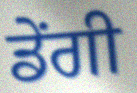
ਡੇਂਗੀ